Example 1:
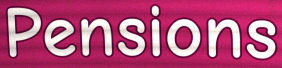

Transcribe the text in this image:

Pensions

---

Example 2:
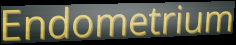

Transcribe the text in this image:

Endometrium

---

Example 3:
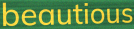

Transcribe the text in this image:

beautious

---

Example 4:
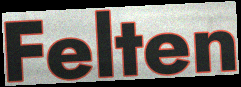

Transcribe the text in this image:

Felten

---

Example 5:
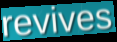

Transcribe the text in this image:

revives